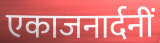
एकाजनार्दनीं